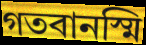
গতবানস্মি